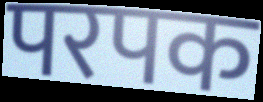
परपक